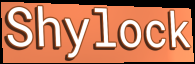
Shylock